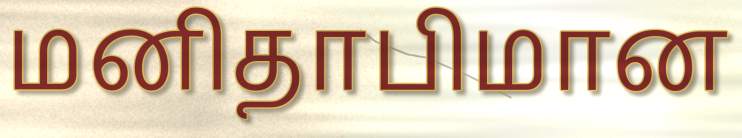
மனிதாபிமான